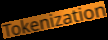
Tokenization